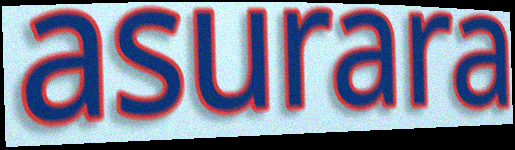
asurara